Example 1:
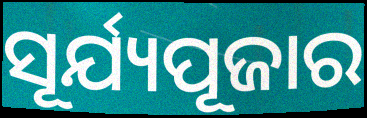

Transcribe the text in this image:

ସୂର୍ଯ୍ୟପୂଜାର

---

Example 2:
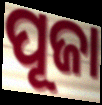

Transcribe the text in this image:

ପୂଜା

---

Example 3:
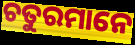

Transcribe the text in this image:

ଚତୁରମାନେ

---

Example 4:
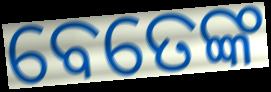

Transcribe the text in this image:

ବେତେଙ୍କ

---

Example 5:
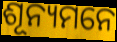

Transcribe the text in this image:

ଶୂନ୍ୟମନେ